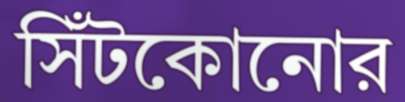
সিঁটকোনোর